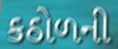
કઠોળની